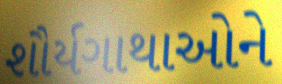
શૌર્યગાથાઓને